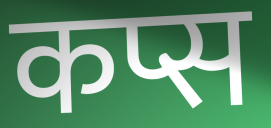
कप्स